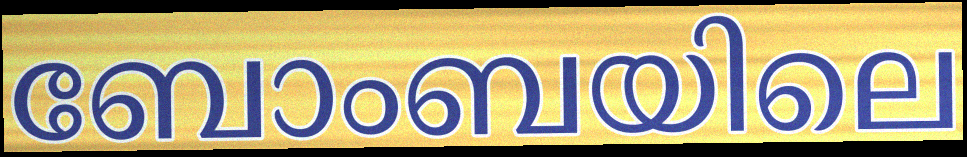
ബോംബയിലെ